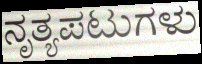
ನೃತ್ಯಪಟುಗಳು